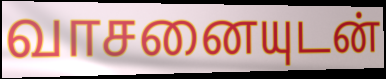
வாசனையுடன்